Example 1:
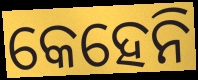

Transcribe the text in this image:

କେହେନି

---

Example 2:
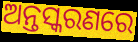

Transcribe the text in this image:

ଅନ୍ତସ୍କରଣରେ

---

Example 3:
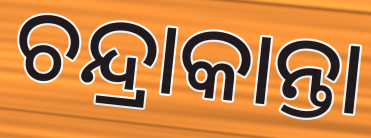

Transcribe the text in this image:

ଚନ୍ଦ୍ରାକାନ୍ତା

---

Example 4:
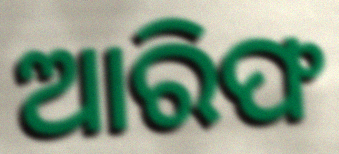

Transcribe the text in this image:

ଆରିଫ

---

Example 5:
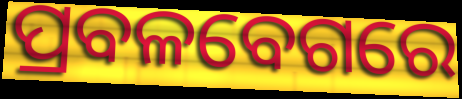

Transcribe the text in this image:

ପ୍ରବଳବେଗରେ